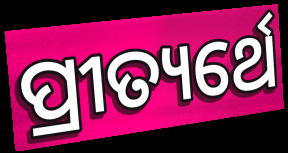
ପ୍ରୀତ୍ୟର୍ଥେ